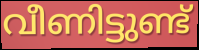
വീണിട്ടുണ്ട്